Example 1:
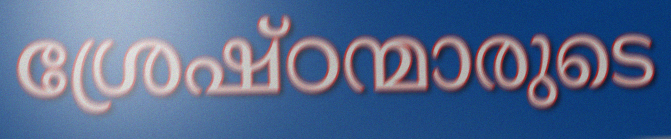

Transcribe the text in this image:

ശ്രേഷ്ഠന്മാരുടെ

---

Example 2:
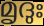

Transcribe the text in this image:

മൃദുഃ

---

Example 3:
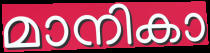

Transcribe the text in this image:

മാനികാ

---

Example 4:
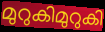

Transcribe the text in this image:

മുറുകിമുറുകി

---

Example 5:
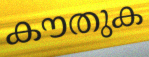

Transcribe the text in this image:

കൗതുക